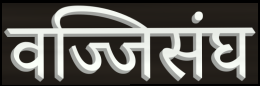
वज्जिसंघ